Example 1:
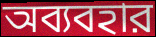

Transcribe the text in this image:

অব্যবহার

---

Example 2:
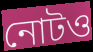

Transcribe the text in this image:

নোটও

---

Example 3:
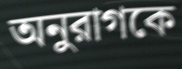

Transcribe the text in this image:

অনুরাগকে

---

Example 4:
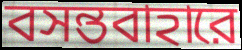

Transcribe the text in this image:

বসন্তবাহারে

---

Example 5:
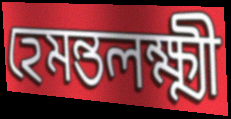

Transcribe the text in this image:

হেমন্তলক্ষ্মী